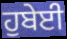
ਹੁਬੇਈ